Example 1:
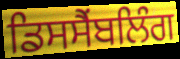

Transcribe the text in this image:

ਡਿਸਸੈਂਬਲਿੰਗ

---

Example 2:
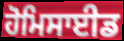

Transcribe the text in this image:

ਹੋਮਿਸਾਈਡ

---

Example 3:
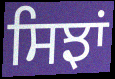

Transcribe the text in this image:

ਸਿਝਾਂ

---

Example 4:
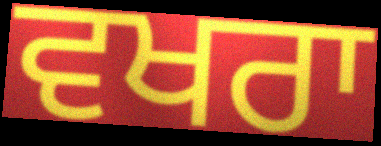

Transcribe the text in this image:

ਵਖਰਾ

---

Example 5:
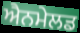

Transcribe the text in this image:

ਐਨਮੇਲਡ